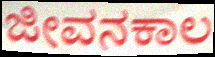
ಜೀವನಕಾಲ